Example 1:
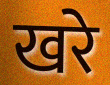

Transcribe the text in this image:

खरे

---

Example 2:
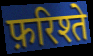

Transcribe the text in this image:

फ़रिश्ते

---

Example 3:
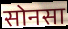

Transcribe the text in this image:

सोनसा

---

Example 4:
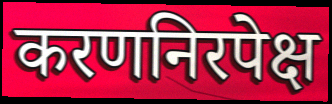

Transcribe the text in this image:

करणनिरपेक्ष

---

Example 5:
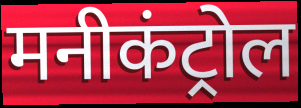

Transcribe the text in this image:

मनीकंट्रोल